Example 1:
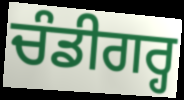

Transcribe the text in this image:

ਚੰਡੀਗਰ੍ਹ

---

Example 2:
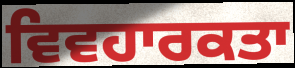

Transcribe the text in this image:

ਵਿਵਹਾਰਕਤਾ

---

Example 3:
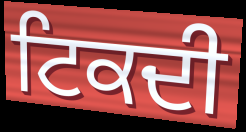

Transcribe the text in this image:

ਟਿਕਦੀ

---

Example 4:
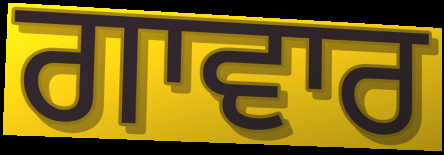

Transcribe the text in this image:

ਗਾਵਾਰ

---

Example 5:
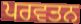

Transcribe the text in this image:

ਪਰਵਤਨ